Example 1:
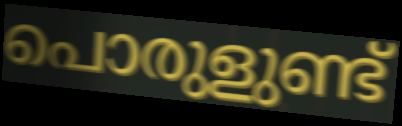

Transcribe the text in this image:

പൊരുളുണ്ട്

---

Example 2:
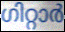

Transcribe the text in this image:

ഗിറ്റാർ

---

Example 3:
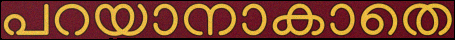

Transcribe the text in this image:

പറയാനാകാതെ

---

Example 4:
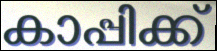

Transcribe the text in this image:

കാപ്പിക്ക്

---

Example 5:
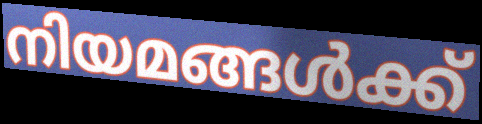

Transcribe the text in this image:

നിയമങ്ങൾക്ക്